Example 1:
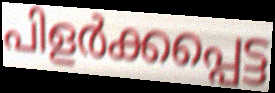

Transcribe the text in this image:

പിളർക്കപ്പെട്ട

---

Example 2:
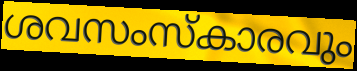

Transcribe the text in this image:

ശവസംസ്കാരവും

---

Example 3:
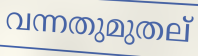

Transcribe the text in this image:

വന്നതുമുതല്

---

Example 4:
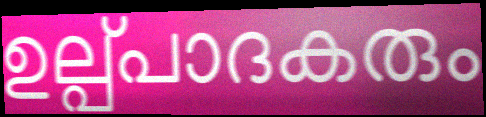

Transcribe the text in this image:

ഉല്പ്പാദകരും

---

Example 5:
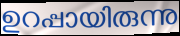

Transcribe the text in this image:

ഉറപ്പായിരുന്നു